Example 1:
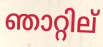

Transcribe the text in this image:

ഞാറ്റില്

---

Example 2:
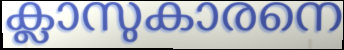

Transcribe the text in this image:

ക്ലാസുകാരനെ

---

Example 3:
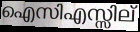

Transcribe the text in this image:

ഐസിഎസ്സില്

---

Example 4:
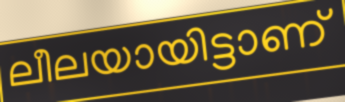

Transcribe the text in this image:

ലീലയായിട്ടാണ്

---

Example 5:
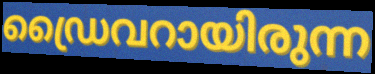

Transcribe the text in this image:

ഡ്രൈവറായിരുന്ന